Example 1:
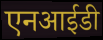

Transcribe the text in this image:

एनआईडी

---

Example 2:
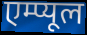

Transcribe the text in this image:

एम्प्यूल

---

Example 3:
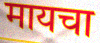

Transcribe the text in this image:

मायचा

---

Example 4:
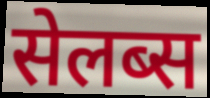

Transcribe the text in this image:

सेलब्स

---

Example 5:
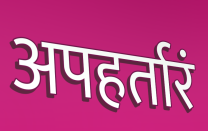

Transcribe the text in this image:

अपहर्तारं